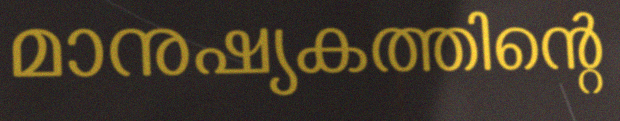
മാനുഷ്യകത്തിന്റെ